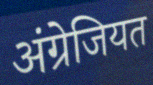
अंग्रेजियत